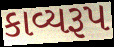
કાવ્યરૂપ